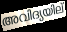
അവിദ്യയില്